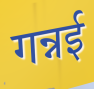
गन्नई